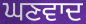
ਘਣਵਾਦ